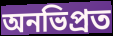
অনভিপ্রত